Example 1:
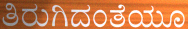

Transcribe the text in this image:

ತಿರುಗಿದಂತೆಯೂ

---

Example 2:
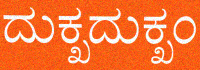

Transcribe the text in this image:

ದುಕ್ಖದುಕ್ಖಂ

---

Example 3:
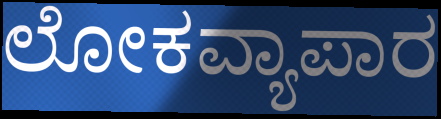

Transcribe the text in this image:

ಲೋಕವ್ಯಾಪಾರ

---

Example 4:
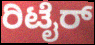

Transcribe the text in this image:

ರಿಟೈರ್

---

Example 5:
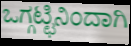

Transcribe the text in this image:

ಒಗ್ಗಟ್ಟಿನಿಂದಾಗಿ